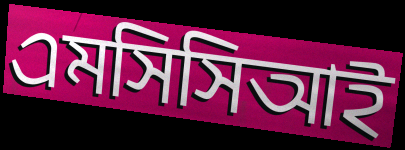
এমসিসিআই